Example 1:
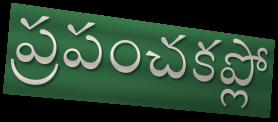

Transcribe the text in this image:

ప్రపంచకప్లో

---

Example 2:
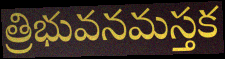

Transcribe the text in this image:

త్రిభువనమస్తక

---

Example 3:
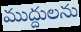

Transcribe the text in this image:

ముద్దులను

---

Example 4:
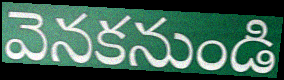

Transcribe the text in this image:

వెనకనుండి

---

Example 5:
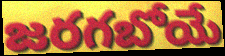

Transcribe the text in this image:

జరగబోయే